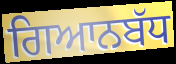
ਗਿਆਨਬੱਧ